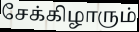
சேக்கிழாரும்